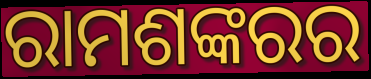
ରାମଶଙ୍କରର